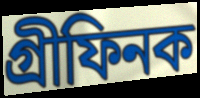
গ্ৰীফিনক